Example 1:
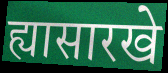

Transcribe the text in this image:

ह्यासारखे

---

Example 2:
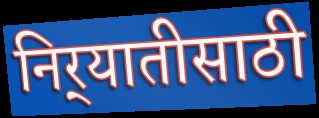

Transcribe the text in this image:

निर्यातीसाठी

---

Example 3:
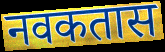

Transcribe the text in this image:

नवकतास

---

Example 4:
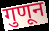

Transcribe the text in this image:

गुणून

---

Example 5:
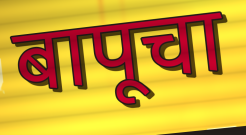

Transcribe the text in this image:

बापूचा